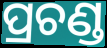
ପ୍ରଚଣ୍ଡ